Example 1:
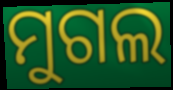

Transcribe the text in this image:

ମୁଗଲ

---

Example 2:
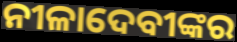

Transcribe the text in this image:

ନୀଳାଦେବୀଙ୍କର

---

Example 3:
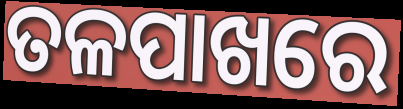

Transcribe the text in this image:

ତଳପାଖରେ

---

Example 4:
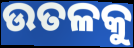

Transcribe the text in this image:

ଉତଳକୁ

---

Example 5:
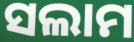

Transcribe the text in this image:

ସଲାମ